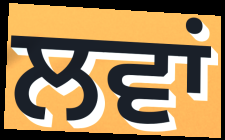
ਲਵਾਂ